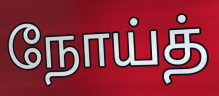
நோய்த்